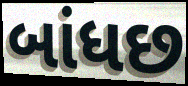
બાંધછ